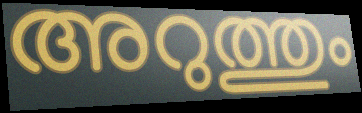
അറുത്തും